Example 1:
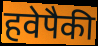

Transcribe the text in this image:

हवेपैकी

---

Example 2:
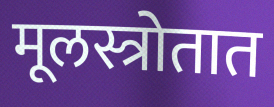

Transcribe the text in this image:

मूलस्त्रोतात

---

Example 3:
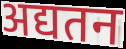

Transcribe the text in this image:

अद्यतन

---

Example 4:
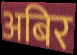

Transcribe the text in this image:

अबिर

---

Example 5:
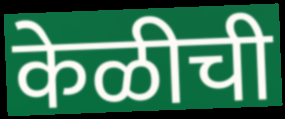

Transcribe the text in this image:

केळीची